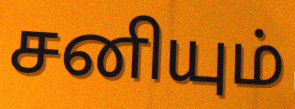
சனியும்